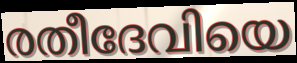
രതീദേവിയെ